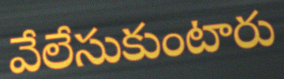
వేలేసుకుంటారు